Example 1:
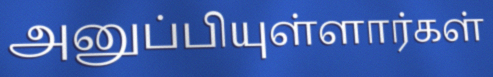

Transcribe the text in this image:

அனுப்பியுள்ளார்கள்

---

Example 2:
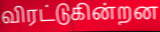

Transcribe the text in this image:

விரட்டுகின்றன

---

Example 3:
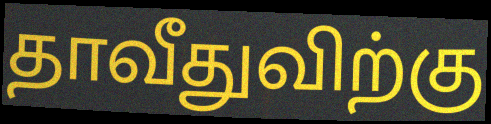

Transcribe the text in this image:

தாவீதுவிற்கு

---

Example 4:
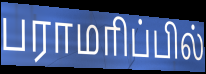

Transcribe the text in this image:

பராமரிப்பில்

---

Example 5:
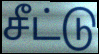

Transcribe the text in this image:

சீட்டு